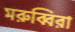
মরুব্বিরা